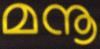
മനൂ